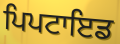
ਪਿਪਟਾਇਡ